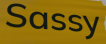
Sassy